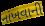
નાંખવાની